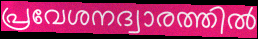
പ്രവേശനദ്വാരത്തിൽ